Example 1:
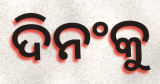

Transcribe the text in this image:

ଦିନଂକୁ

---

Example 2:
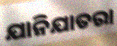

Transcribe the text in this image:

ଯାନିଯାତରା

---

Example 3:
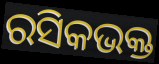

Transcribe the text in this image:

ରସିକଭକ୍ତ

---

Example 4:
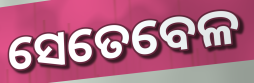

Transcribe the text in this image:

ସେତେବେଳ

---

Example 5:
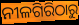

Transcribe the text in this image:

ନୀଳଗିରିଠାରୁ